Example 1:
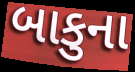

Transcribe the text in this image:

બાકુના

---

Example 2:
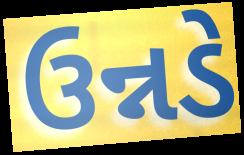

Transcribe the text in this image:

ઉન્નડે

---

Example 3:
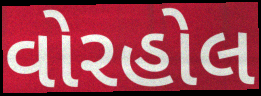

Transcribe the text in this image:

વોરહોલ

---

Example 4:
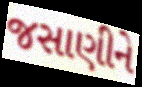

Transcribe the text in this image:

જસાણીને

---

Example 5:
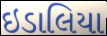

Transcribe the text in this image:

ઇડાલિયા